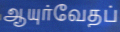
ஆயுர்வேதப்